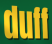
duff